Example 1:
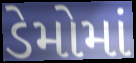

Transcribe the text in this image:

ડેમોમાં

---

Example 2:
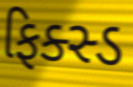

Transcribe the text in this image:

ફિક્સ્ડ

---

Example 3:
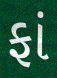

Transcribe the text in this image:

ફાં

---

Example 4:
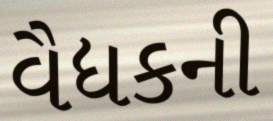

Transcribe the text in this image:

વૈદ્યકની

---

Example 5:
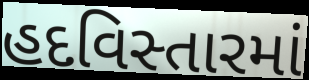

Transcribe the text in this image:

હદવિસ્તારમાં